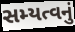
સમ્યત્વનું